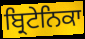
ਬ੍ਰਿਟੇਨਿਕਾ